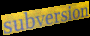
subversion